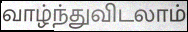
வாழ்ந்துவிடலாம்